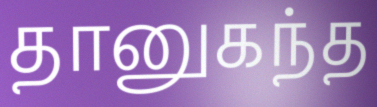
தானுகந்த